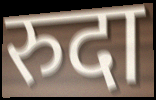
रुदा